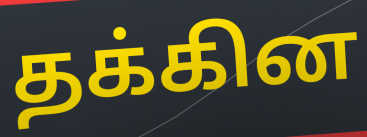
தக்கின